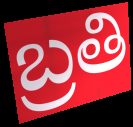
బ్రతి